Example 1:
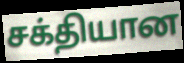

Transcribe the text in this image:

சக்தியான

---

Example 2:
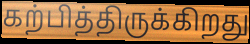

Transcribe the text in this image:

கற்பித்திருக்கிறது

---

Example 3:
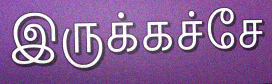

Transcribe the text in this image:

இருக்கச்சே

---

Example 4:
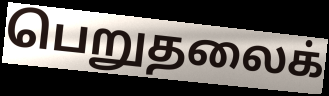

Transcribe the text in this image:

பெறுதலைக்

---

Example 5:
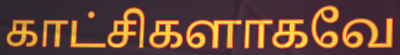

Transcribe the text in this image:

காட்சிகளாகவே